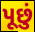
પૂછું